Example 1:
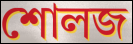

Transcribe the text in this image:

শোলজ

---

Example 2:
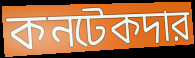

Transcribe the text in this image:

কনটেকদার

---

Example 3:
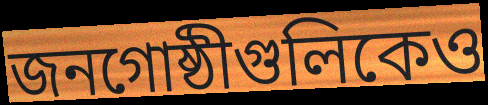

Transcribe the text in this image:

জনগোষ্ঠীগুলিকেও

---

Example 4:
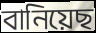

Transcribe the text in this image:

বানিয়েছ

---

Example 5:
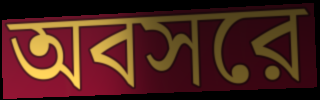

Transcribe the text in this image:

অবসরে